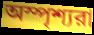
অস্পৃশ্যরা